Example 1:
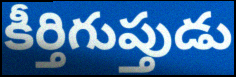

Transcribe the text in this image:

కీర్తిగుప్తుడు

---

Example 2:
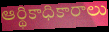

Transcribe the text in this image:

ఆర్థికాధికారాలు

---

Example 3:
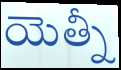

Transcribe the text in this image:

యెత్నీ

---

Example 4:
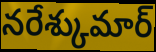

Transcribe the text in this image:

నరేశ్కుమార్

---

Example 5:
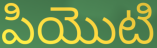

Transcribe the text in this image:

పియొటి